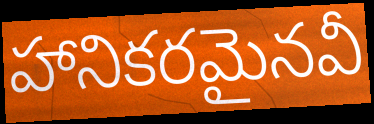
హానికరమైనవీ